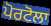
ਪੋਰਟੋਲਾ